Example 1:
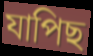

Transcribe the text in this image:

যাপিছ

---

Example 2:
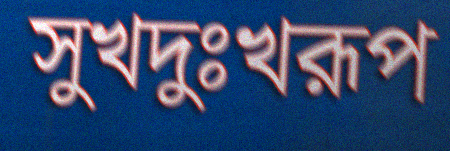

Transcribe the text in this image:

সুখদুঃখরূপ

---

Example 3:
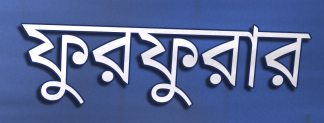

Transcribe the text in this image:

ফুরফুরার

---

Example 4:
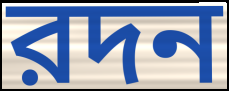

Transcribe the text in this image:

রদন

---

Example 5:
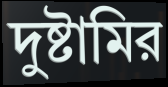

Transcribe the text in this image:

দুষ্টামির